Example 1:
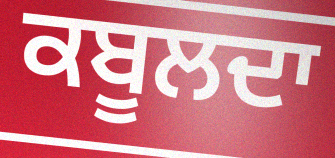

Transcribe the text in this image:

ਕਬੂਲਦਾ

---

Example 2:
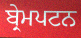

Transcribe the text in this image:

ਬ੍ਰੇਮਪਟਨ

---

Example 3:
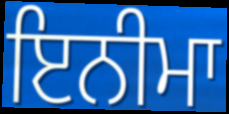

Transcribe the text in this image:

ਇਨੀਮਾ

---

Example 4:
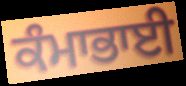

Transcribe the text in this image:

ਕੰਮਾਭਾਈ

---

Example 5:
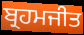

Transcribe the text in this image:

ਬ੍ਰਹਮਜੀਤ